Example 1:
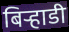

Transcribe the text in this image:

बिर्‍हाडी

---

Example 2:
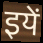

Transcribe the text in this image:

इयें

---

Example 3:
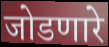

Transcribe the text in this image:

जोडणारे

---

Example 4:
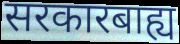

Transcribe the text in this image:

सरकारबाह्य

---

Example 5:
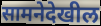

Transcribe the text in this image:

सामनेदेखील